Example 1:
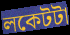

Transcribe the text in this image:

লকেটটা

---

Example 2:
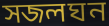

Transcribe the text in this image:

সজলঘন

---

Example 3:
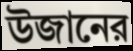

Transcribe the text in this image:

উজানের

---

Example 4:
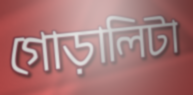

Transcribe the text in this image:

গোড়ালিটা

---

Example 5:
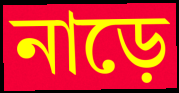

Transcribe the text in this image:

নাড়ে